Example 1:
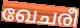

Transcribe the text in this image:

ഖേചരീ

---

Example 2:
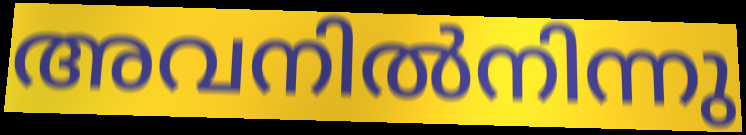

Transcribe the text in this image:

അവനിൽനിന്നു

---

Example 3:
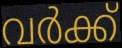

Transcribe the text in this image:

വർക്ക്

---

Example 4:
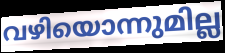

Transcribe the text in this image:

വഴിയൊന്നുമില്ല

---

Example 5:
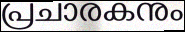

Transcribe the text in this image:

പ്രചാരകനും